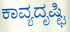
ಕಾವ್ಯದೃಷ್ಟಿ